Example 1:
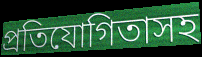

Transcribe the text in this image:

প্রতিযোগিতাসহ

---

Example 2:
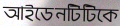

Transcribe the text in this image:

আইডেনটিটিকে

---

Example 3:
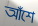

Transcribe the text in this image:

আঁশে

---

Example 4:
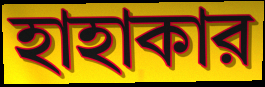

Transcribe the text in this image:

হাহাকার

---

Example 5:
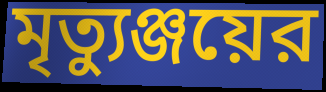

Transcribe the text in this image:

মৃত্যুঞ্জয়ের